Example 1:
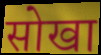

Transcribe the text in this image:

सोखा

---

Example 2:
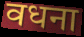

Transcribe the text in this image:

वधना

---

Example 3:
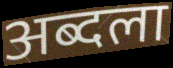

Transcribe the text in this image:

अब्दला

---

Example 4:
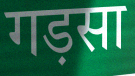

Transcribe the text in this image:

गड़सा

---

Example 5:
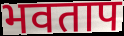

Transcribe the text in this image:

भवताप